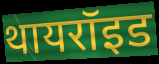
थायरॉइड